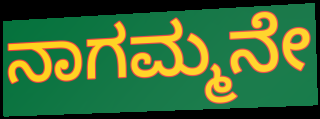
ನಾಗಮ್ಮನೇ